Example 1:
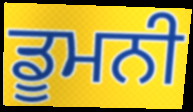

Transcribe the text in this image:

ਡੂਮਨੀ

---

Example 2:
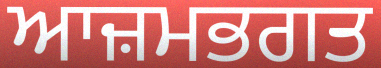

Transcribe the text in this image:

ਆਜ਼ਮਭਗਤ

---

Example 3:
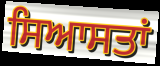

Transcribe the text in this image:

ਸਿਆਸਤਾਂ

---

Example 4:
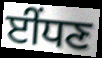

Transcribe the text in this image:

ਈਂਧਣ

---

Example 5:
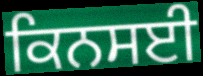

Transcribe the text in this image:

ਕਿਨਸਈ